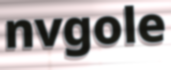
nvgole